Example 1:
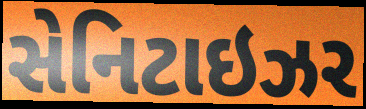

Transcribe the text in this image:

સેનિટાઇઝર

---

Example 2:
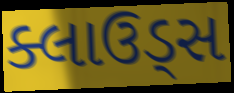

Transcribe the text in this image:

ક્લાઉડ્સ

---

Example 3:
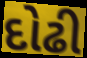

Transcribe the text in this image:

દોઢી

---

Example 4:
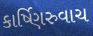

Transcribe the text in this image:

કાર્ષ્ણિરુવાચ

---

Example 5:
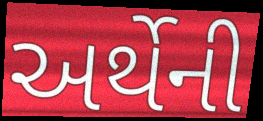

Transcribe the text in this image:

અર્થેની